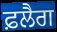
ਫ਼ਲੈਗ